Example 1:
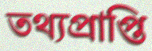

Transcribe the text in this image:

তথ্যপ্রাপ্তি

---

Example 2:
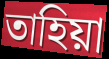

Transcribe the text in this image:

তাহিয়া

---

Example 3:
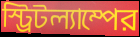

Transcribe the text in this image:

স্ট্রিটল্যাম্পের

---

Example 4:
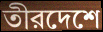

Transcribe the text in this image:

তীরদেশে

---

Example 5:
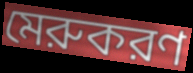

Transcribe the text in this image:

মেরুকরণ